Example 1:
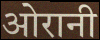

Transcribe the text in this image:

ओरानी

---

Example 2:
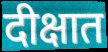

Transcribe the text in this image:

दीक्षात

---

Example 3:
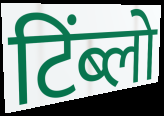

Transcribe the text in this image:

टिंब्लो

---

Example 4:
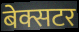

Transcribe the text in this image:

बेक्सटर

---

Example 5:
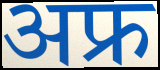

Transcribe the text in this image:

अफ्र